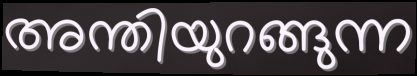
അന്തിയുറങ്ങുന്ന